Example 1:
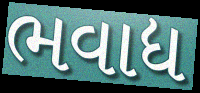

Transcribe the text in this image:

ભવાદ્ય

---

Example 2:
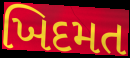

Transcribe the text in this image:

ખિદમત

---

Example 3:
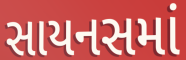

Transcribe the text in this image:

સાયનસમાં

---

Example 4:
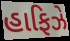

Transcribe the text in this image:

હાફિઝે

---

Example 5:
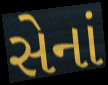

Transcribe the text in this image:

સેનાં